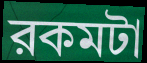
রকমটা